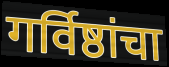
गर्विष्ठांचा